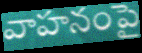
వాహనంపై